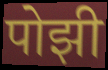
पोझी